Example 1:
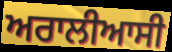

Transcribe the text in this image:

ਅਰਾਲੀਆਸੀ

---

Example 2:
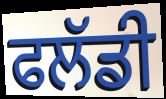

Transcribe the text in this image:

ਫਲੱਡੀ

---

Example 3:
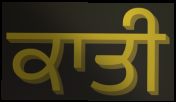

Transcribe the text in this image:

ਕਾਤੀ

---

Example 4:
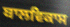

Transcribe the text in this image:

ਬਾਲਵਿਕਾਸ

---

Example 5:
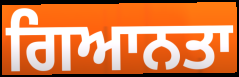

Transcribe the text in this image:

ਗਿਆਨਤਾ